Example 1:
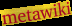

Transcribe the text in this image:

metawiki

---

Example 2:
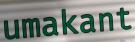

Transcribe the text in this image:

umakant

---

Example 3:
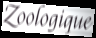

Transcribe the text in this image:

Zoologique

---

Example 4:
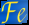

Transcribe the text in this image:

Fe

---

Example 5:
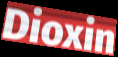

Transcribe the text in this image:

Dioxin